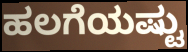
ಹಲಗೆಯಷ್ಟು